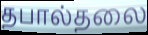
தபால்தலை